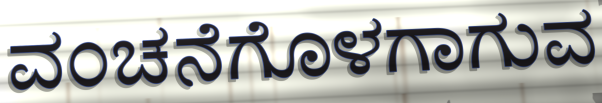
ವಂಚನೆಗೊಳಗಾಗುವ